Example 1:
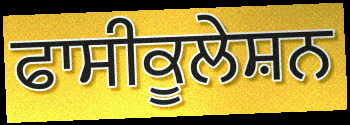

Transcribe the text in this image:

ਫਾਸੀਕੂਲੇਸ਼ਨ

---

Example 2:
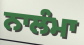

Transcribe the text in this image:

ਨਾਲੰਮਾ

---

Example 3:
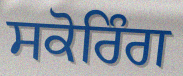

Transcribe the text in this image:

ਸਕੋਰਿੰਗ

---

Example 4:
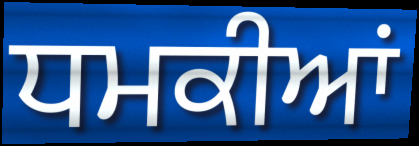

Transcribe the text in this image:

ਧਮਕੀਆਂ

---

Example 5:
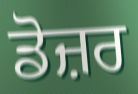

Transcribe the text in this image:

ਡੋਜ਼ਰ